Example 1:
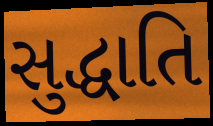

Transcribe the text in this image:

સુદ્ધાતિ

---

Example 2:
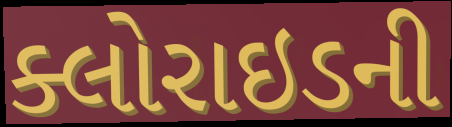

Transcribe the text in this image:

ક્લોરાઇડની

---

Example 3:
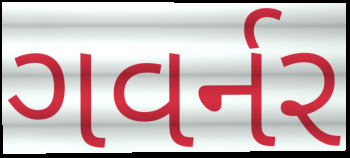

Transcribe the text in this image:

ગવર્નર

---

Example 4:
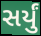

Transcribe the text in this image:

સર્યું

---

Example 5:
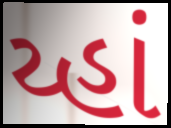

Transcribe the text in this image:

ય્હાં